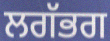
ਲਗੱਭਗ